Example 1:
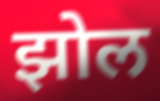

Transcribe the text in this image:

झोल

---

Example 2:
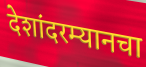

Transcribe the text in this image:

देशांदरम्यानचा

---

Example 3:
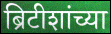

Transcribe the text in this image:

ब्रिटीशांच्या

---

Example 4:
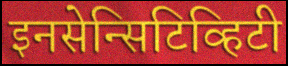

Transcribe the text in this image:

इनसेन्सिटिव्हिटी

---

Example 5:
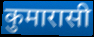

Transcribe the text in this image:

कुमारासी